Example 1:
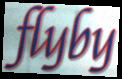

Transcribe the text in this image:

flyby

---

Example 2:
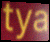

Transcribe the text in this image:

tya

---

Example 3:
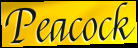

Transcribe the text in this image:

Peacock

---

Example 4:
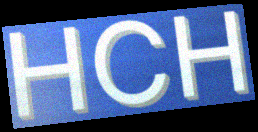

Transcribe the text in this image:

HCH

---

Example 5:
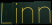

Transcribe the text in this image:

Linn